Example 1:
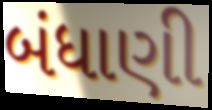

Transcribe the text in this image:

બંધાણી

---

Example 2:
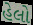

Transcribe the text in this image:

હેલો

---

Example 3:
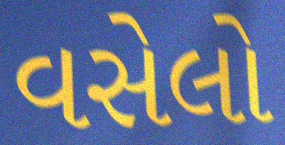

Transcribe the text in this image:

વસેલો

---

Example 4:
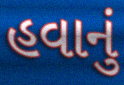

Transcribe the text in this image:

હવાનું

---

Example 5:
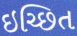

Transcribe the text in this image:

ઇચ્છિત